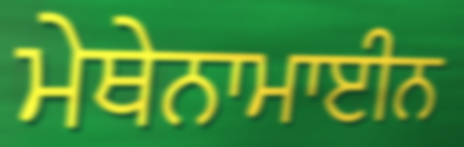
ਮੇਥੇਨਾਮਾਈਨ